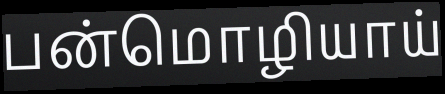
பன்மொழியாய்